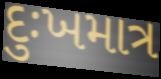
દુઃખમાત્ર